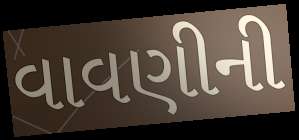
વાવણીની